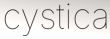
cystica